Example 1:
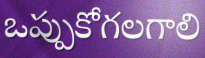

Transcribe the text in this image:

ఒప్పుకోగలగాలి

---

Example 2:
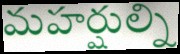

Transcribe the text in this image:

మహర్షుల్ని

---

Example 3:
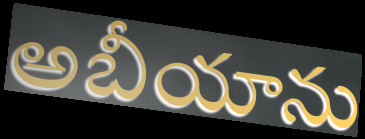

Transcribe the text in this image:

అబీయాను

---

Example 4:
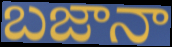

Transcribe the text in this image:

బజానా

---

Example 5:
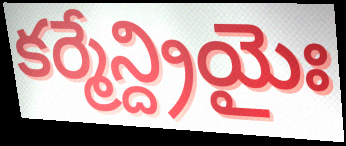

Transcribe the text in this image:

కర్మేన్ద్రియైః